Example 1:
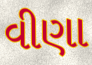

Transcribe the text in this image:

વીણા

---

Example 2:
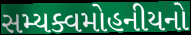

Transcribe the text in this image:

સમ્યક્વમોહનીયનો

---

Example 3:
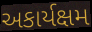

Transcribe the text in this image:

અકાર્યક્ષમ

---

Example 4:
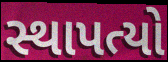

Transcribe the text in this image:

સ્થાપત્યો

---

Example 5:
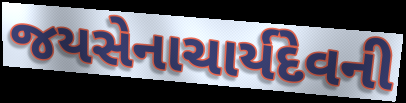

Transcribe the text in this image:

જયસેનાચાર્યદેવની